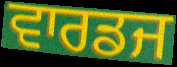
ਵਾਰਡਜ